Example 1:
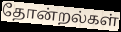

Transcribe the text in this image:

தோன்றல்கள்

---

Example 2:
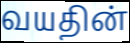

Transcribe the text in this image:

வயதின்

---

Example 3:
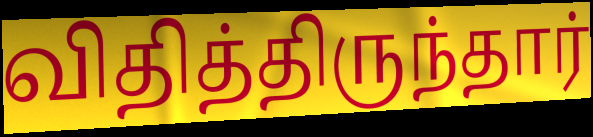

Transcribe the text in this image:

விதித்திருந்தார்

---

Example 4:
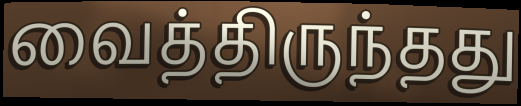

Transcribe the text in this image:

வைத்திருந்தது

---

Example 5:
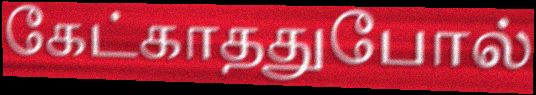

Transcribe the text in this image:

கேட்காததுபோல்